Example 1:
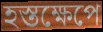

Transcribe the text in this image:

হস্তক্ষেপে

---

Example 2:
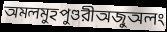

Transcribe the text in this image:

অমলমুহপুণ্ডরীঅজুঅলং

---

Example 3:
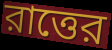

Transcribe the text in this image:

রাত্তের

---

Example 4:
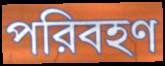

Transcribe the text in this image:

পরিবহণ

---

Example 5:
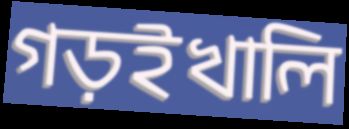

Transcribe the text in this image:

গড়ইখালি